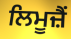
ਲਿਮੂਜ਼ੈਂ